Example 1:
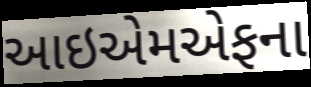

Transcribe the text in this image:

આઇએમએફના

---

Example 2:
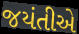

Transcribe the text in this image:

જયંતીએ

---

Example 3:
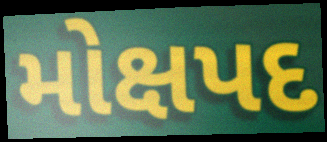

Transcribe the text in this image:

મોક્ષપદ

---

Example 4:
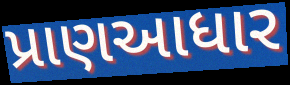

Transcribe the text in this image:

પ્રાણઆધાર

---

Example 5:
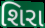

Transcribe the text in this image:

શિરા